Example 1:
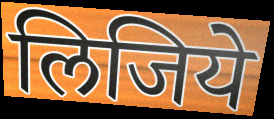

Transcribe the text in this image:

लिजिये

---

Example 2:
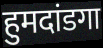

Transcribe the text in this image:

हुमदांडगा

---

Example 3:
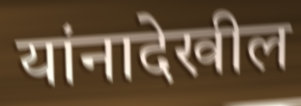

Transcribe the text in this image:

यांनादेखील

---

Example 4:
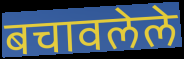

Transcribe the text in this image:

बचावलेले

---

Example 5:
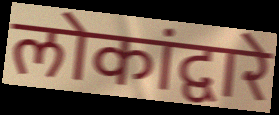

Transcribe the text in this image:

लोकांद्वारे